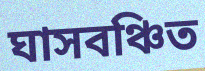
ঘাসবঞ্চিত